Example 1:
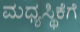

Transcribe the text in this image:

ಮಧ್ಯಸ್ಥಿಕೆಗೆ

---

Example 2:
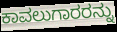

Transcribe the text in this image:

ಕಾವಲುಗಾರರನ್ನು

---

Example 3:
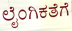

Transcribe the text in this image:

ಲೈಂಗಿಕತೆಗೆ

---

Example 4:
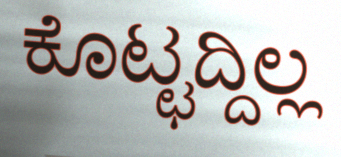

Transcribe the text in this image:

ಕೊಟ್ಟದ್ದಿಲ್ಲ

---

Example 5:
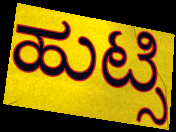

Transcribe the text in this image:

ಹುಟ್ಸಿ